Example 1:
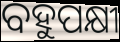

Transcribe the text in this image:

ବହୁପକ୍ଷୀ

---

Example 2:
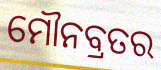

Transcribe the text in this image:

ମୌନବ୍ରତର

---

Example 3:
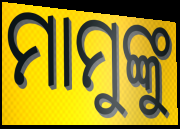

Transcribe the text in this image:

ମାମୁଙ୍କୁ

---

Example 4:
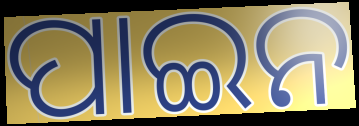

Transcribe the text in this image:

ପାଇନ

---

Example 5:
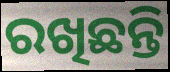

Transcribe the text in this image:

ରଖିଛନ୍ତି